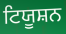
ਟਿਯੂਸ਼ਨ